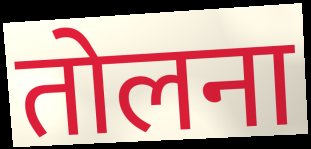
तोलना